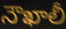
నౌఖాలీ